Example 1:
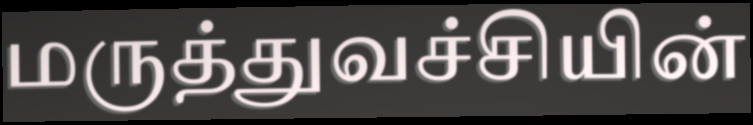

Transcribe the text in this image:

மருத்துவச்சியின்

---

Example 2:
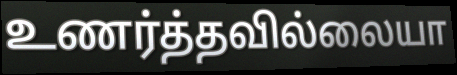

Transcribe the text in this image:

உணர்த்தவில்லையா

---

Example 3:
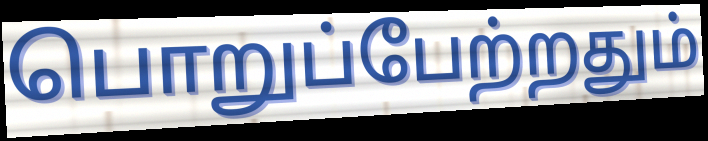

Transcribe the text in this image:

பொறுப்பேற்றதும்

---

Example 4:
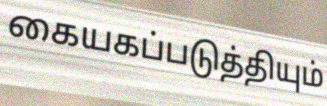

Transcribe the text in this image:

கையகப்படுத்தியும்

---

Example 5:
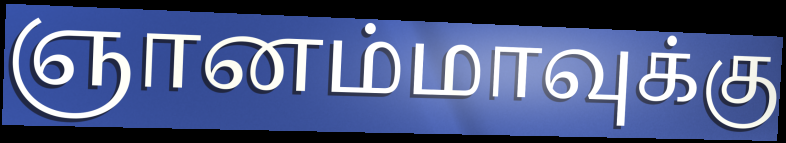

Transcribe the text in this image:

ஞானம்மாவுக்கு